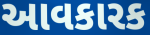
આવકારક